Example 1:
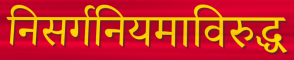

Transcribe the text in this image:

निसर्गनियमाविरुद्ध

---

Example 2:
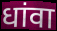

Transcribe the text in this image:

धांवा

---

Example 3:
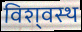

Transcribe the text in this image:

विश्वस्थ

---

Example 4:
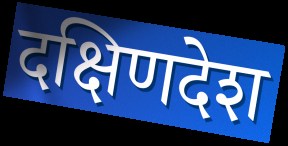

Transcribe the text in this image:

दक्षिणदेश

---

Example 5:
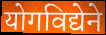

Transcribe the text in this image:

योगविद्येने